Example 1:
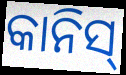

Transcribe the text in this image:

କାନିସ୍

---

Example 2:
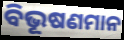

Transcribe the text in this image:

ବିଭୂଷଣମାନ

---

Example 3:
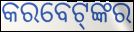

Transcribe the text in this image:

କରବେଟ୍‌ଙ୍କର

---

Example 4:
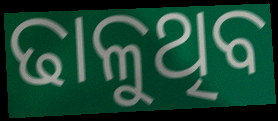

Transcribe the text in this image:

ଢାଳୁଥିବ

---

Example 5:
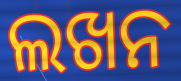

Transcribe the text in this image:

ଲଖନ